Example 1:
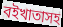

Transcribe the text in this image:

বইখাতাসহ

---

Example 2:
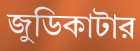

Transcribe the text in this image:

জুডিকাটার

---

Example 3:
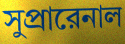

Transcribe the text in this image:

সুপ্রারেনাল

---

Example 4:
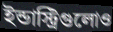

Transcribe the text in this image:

ইন্ডাস্ট্রিগুলোও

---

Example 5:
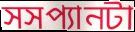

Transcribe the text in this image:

সসপ্যানটা